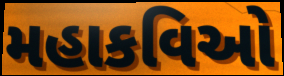
મહાકવિઓ